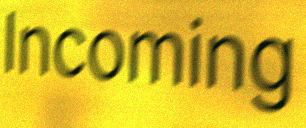
Incoming